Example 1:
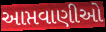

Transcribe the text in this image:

આપ્તવાણીઓ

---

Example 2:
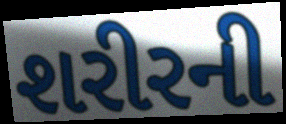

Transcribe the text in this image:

શરીરની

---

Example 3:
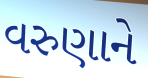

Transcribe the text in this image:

વરુણાને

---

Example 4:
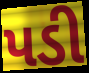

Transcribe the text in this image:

પડી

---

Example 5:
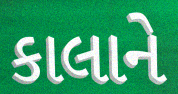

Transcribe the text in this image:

કાલાને